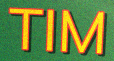
TIM